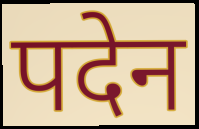
पदेन